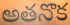
అతనొక